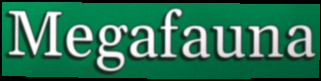
Megafauna